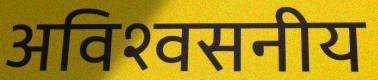
अविश्वसनीय